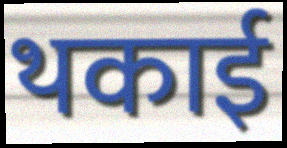
थकाई